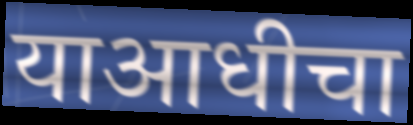
याआधीचा